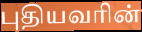
புதியவரின்